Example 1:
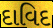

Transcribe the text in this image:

દાવિદ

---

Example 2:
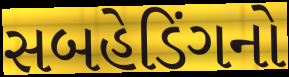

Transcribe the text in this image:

સબહેડિંગનો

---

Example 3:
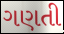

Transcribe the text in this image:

ગણતી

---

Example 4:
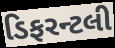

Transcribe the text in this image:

ડિફરન્ટલી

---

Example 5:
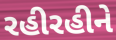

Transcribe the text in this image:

રહીરહીને